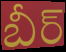
బీర్